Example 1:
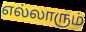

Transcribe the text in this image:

எல்லாரும்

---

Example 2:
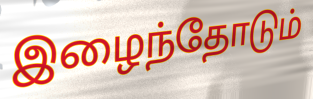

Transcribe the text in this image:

இழைந்தோடும்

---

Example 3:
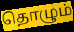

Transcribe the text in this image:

தொழும்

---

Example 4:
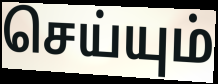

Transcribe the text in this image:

செய்யும்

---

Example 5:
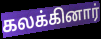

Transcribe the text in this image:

கலக்கினார்